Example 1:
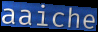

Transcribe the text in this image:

aaiche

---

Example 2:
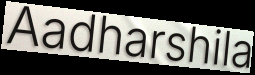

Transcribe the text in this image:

Aadharshila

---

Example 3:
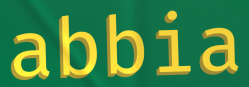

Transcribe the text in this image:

abbia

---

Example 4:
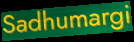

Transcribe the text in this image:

Sadhumargi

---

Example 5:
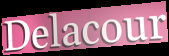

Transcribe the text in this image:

Delacour